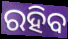
ରହିବ